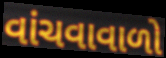
વાંચવાવાળો